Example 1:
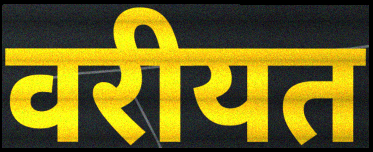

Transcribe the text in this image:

वरीयत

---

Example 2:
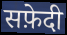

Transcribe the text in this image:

सफ़ेदी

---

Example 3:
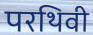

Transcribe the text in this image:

परथिवी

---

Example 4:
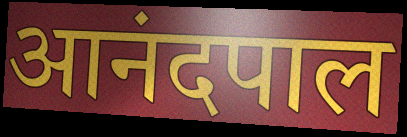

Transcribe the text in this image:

आनंदपाल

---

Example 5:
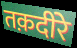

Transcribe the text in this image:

तक़दीरे